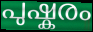
പുഷ്കരം